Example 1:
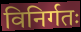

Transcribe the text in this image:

विनिर्गतः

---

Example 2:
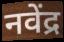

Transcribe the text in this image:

नवेंद्र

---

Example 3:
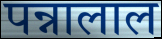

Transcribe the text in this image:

पन्नालाल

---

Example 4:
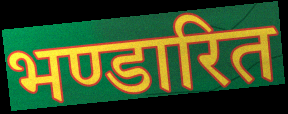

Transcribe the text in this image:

भण्डारित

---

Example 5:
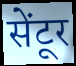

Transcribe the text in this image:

सेंटूर